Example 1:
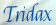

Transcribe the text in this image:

Tridax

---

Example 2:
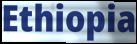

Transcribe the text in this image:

Ethiopia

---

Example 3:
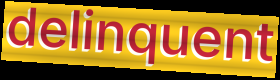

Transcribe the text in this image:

delinquent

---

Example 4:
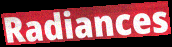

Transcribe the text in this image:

Radiances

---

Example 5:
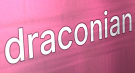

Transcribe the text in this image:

draconian